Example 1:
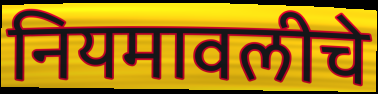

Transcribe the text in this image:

नियमावलीचे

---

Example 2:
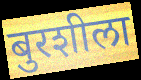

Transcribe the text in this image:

बुरशीला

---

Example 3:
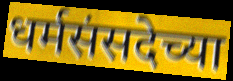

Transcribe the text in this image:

धर्मसंसदेच्या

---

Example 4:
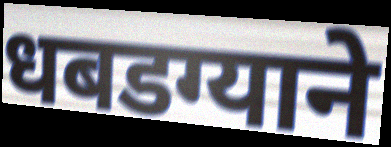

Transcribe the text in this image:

धबडग्याने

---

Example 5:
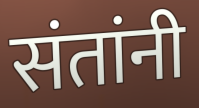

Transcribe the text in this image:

संतांनी